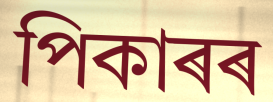
পিকাৰৰ